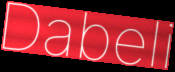
Dabeli